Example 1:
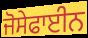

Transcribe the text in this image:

ਜੋਸੇਫਾਈਨ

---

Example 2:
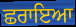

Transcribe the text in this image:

ਛਰਾਇਆ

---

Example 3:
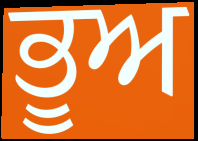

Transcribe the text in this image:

ਭੂਅ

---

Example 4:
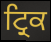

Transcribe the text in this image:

ਟ੍ਰਿਕ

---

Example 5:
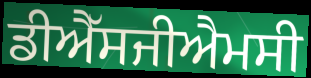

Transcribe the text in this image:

ਡੀਐੱਸਜੀਐਮਸੀ